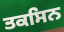
ਤਕਸਿਨ